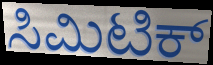
ಸಿಮಿಟಿಕ್